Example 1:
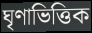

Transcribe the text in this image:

ঘৃণাভিত্তিক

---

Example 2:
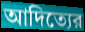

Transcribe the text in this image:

আদিত্যের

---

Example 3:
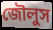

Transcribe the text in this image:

জৌলুস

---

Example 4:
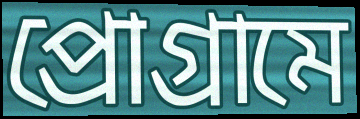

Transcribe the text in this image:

প্রোগ্রামে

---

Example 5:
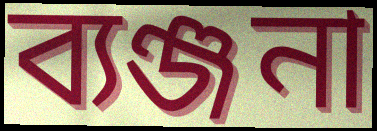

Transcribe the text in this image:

ব্যঞ্জনা